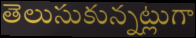
తెలుసుకున్నట్లుగా